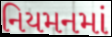
નિયમનમાં